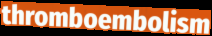
thromboembolism